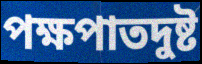
পক্ষপাতদুষ্ট